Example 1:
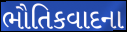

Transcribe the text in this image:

ભૌતિકવાદના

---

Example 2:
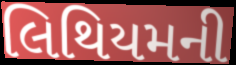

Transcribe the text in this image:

લિથિયમની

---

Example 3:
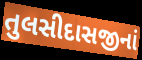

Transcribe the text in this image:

તુલસીદાસજીનાં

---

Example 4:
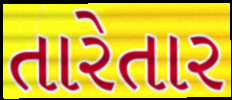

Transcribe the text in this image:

તારેતાર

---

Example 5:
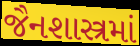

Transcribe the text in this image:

જૈનશાસ્ત્રમાં